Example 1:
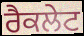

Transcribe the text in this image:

ਰੈਕਲੇਟ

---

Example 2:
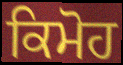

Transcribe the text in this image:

ਕਿਮੋਹ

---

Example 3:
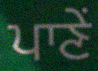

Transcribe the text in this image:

ਪਾਣੇਂ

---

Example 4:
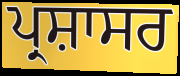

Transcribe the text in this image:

ਪ੍ਰਸ਼ਾਸਰ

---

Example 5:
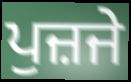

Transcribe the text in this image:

ਪੁਜ਼ਜੇ